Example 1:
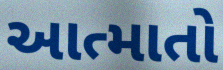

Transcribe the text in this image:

આત્માતો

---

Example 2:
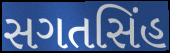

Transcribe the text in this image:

સગતસિંહ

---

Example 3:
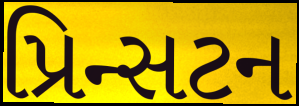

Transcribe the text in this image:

પ્રિન્સટન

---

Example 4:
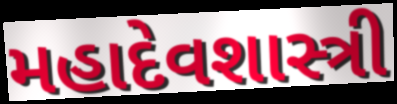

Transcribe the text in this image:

મહાદેવશાસ્ત્રી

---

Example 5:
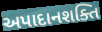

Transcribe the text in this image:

અપાદાનશક્તિ